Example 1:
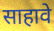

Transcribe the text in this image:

साहावे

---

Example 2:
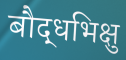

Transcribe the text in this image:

बौद्धभिक्षु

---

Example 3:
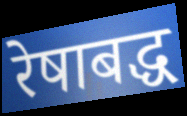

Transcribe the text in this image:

रेषाबद्ध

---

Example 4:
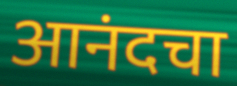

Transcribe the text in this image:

आनंदचा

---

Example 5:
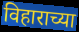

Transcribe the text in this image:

विहाराच्या